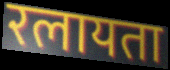
रलायता